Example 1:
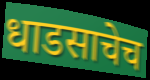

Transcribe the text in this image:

धाडसाचेच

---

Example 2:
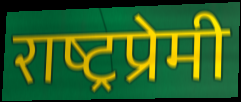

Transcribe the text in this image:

राष्ट्रप्रेमी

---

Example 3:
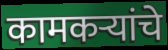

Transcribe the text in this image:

कामकऱ्यांचे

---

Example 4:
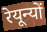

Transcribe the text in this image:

रेयून्यों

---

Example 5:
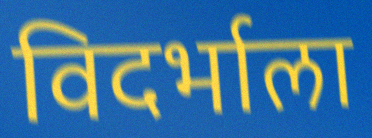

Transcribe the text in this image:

विदर्भाला